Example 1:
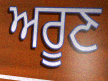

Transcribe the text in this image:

ਅਰੂਣ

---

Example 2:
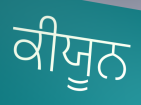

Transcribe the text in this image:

ਕੀਯੂਨ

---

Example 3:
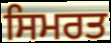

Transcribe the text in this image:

ਸਿਮਰਤ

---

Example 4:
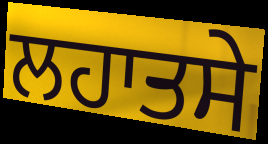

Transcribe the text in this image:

ਲਹਾਤਸੇ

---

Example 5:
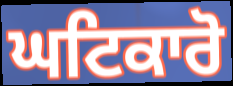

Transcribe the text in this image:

ਘਟਿਕਾਰੋ